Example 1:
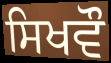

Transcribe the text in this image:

ਸਿਖਵੌ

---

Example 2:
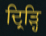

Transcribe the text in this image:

ਦ੍ਰਿੜ੍ਹਿ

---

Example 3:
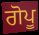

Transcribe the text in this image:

ਗੋਪੂ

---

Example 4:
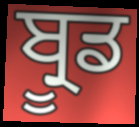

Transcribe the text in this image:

ਬ੍ਰੂਡ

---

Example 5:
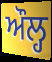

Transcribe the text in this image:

ਔਲ੍ਹ